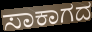
ಸಾಕಾಗದ